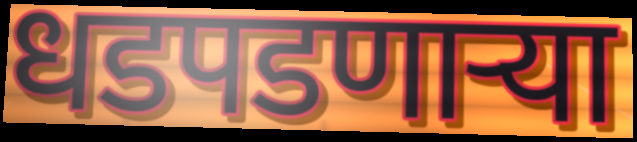
धडपडणाऱ्या